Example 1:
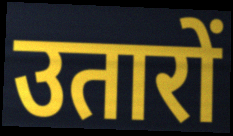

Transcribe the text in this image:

उतारों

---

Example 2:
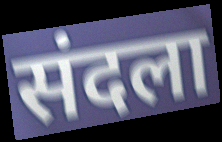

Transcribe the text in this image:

संदला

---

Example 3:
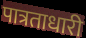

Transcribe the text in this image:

पात्रताधारी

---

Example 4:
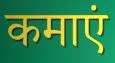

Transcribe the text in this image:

कमाएं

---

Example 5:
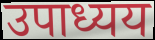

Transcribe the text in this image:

उपाध्यय